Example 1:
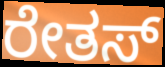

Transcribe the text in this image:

ರೇತಸ್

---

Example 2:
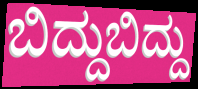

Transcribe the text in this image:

ಬಿದ್ದುಬಿದ್ದು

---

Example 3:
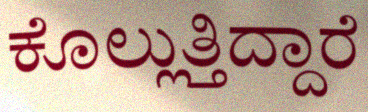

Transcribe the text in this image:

ಕೊಲ್ಲುತ್ತಿದ್ದಾರೆ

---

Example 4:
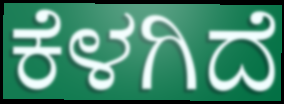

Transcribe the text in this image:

ಕೆಳಗಿದೆ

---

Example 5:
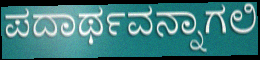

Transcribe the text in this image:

ಪದಾರ್ಥವನ್ನಾಗಲಿ